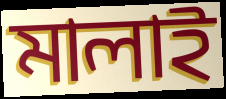
মালাই